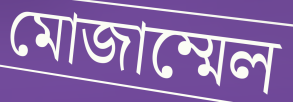
মোজাম্মেল